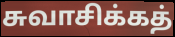
சுவாசிக்கத்